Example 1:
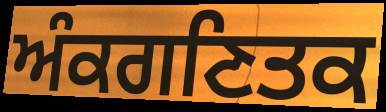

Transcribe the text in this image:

ਅੰਕਗਣਿਤਕ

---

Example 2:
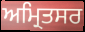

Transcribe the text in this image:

ਅਮ੍ਰਿਤਸਰ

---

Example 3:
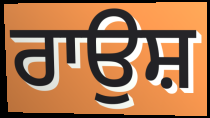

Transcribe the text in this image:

ਰਾਉਸ਼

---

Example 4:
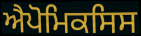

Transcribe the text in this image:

ਐਪੋਮਿਕਸਿਸ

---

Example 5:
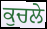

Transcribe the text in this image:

ਕੁਚਲੇ